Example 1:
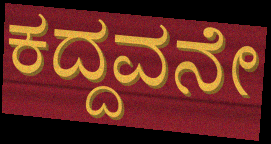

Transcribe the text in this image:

ಕದ್ದವನೇ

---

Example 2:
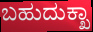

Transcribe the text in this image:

ಬಹುದುಕ್ಖಾ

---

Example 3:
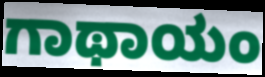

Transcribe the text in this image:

ಗಾಥಾಯಂ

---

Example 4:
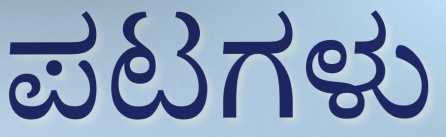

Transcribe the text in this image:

ಪಟಗಳು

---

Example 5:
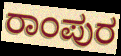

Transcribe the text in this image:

ರಾಂಪುರ